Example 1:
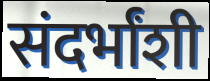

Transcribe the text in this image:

संदर्भांशी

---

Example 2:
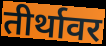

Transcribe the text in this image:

तीर्थावर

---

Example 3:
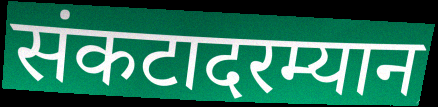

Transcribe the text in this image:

संकटादरम्यान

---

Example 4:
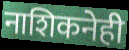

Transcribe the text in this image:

नाशिकनेही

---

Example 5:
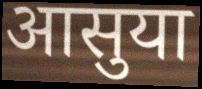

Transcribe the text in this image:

आसुया